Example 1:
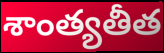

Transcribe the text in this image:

శాంత్యతీత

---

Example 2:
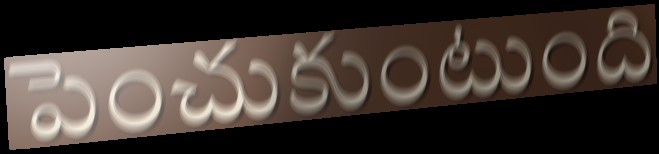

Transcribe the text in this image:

పెంచుకుంటుంది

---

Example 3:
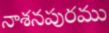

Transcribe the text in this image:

నాశనపురము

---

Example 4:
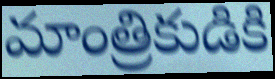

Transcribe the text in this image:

మాంత్రికుడికి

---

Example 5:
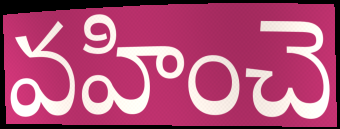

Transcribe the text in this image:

వహించె